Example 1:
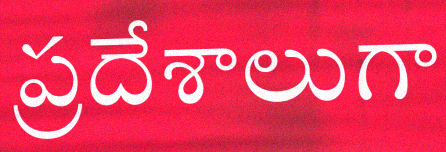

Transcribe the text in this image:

ప్రదేశాలుగా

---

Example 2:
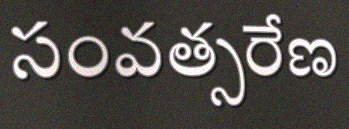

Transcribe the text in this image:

సంవత్సరేణ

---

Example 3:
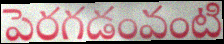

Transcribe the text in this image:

పెరగడంవంటి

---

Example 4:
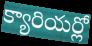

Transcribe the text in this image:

క్యారియర్లో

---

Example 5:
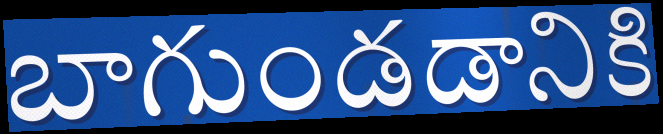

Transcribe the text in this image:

బాగుండడానికి